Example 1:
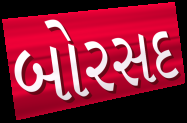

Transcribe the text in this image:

બોરસદ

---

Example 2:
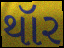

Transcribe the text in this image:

થૉર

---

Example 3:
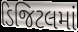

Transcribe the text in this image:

ડિજિટલમાં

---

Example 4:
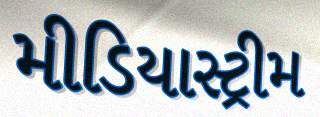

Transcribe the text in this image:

મીડિયાસ્ટ્રીમ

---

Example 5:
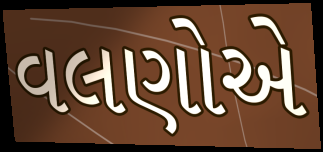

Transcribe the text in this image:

વલણોએ